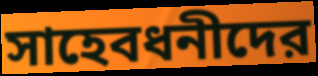
সাহেবধনীদের